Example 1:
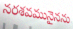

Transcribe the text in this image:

నరశవమునైనను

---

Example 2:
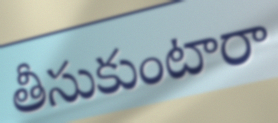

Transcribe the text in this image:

తీసుకుంటారా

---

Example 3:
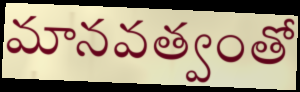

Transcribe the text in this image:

మానవత్వంతో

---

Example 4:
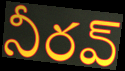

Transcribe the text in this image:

నీరవ్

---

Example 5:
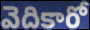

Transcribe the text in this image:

వెదికారో